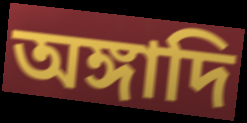
অঙ্গাদি